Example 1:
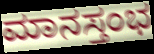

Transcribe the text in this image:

ಮಾನಸ್ತಂಭ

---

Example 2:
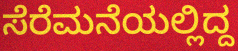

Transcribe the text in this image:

ಸೆರೆಮನೆಯಲ್ಲಿದ್ದ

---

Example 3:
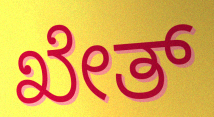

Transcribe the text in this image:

ಖೇತ್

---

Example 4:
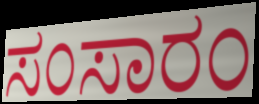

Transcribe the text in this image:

ಸಂಸಾರಂ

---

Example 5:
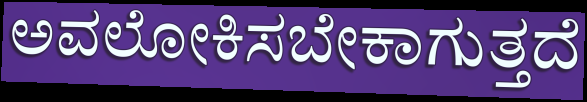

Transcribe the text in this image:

ಅವಲೋಕಿಸಬೇಕಾಗುತ್ತದೆ